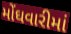
મોંઘવારીમાં